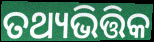
ତଥ୍ୟଭିତ୍ତିକ